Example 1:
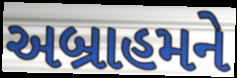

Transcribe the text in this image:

અબ્રાહમને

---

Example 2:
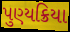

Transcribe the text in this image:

પુણ્યક્રિયા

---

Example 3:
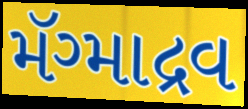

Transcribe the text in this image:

મૅગ્માદ્રવ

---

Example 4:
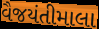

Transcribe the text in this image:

વૈજયંતીમાલા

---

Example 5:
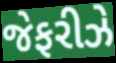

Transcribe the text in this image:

જેફરીઝે